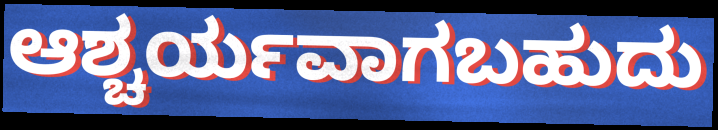
ಆಶ್ಚರ್ಯವಾಗಬಹುದು